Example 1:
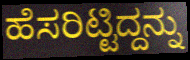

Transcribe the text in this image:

ಹೆಸರಿಟ್ಟಿದ್ದನ್ನು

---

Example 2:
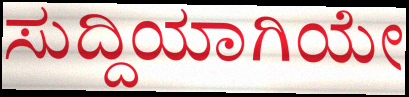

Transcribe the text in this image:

ಸುದ್ದಿಯಾಗಿಯೇ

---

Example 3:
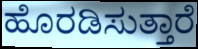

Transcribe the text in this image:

ಹೊರಡಿಸುತ್ತಾರೆ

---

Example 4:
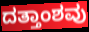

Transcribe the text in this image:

ದತ್ತಾಂಶವು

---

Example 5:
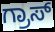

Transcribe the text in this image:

ಗ್ರಾಸ್